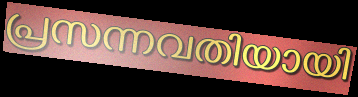
പ്രസന്നവതിയായി